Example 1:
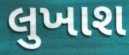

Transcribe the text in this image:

લુખાશ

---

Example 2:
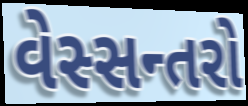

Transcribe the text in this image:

વેસ્સન્તરો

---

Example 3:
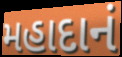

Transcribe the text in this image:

મહાદાનં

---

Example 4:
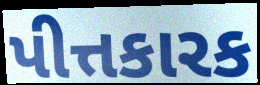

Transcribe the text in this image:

પીત્તકારક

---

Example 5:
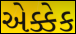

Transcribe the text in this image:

એક્કેક